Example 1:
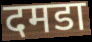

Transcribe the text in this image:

दमडा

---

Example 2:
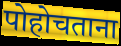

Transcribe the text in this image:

पोहोचताना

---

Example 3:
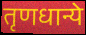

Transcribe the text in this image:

तृणधान्ये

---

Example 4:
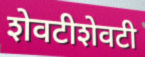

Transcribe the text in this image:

शेवटीशेवटी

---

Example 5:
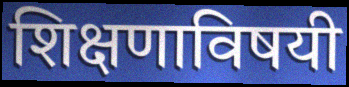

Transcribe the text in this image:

शिक्षणाविषयी